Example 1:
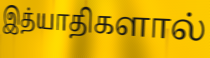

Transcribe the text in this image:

இத்யாதிகளால்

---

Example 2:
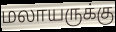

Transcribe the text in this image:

மலாயருக்கு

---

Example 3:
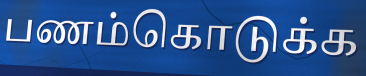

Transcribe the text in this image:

பணம்கொடுக்க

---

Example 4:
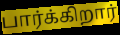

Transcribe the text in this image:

பார்க்கிறார்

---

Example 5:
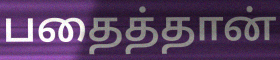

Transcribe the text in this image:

பதைத்தான்